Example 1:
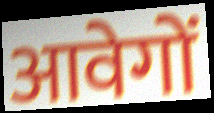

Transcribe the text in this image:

आवेगों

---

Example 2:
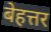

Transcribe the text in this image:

बेहत्तर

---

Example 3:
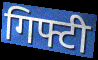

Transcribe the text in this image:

गिफ्टी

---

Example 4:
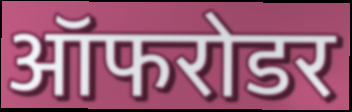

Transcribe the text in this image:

ऑफरोडर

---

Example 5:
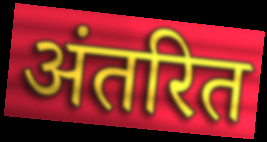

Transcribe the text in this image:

अंतरित